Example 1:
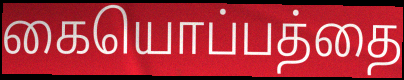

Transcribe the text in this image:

கையொப்பத்தை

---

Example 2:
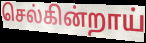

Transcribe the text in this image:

செல்கின்றாய்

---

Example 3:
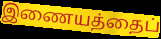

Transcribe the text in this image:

இணையத்தைப்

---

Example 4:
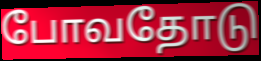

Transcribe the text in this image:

போவதோடு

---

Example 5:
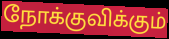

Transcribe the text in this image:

நோக்குவிக்கும்